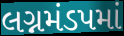
લગ્નમંડપમાં